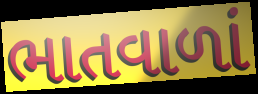
ભાતવાળાં